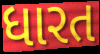
ધારત